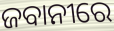
ଜବାନୀରେ